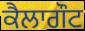
ਕੈਲਾਗੌਟ